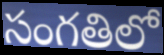
సంగతిలో